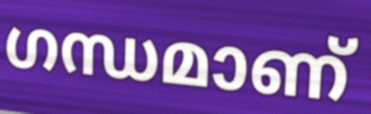
ഗന്ധമാണ്